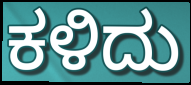
ಕಳಿದು